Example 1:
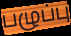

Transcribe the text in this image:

பழுப்பு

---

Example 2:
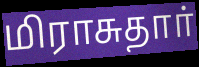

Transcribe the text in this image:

மிராசுதார்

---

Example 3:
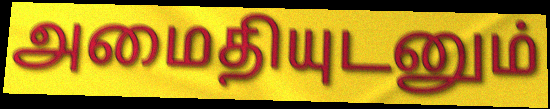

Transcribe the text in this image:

அமைதியுடனும்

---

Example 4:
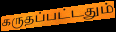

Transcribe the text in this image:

கருதப்பட்டதும்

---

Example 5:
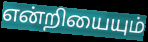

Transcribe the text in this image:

என்றியையும்